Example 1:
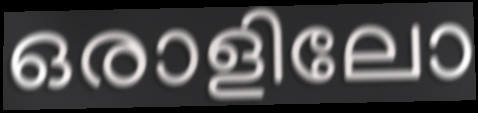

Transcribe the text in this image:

ഒരാളിലോ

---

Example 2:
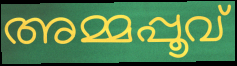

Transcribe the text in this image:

അമ്മപ്പൂവ്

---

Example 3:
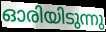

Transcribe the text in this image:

ഓരിയിടുന്നു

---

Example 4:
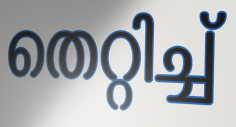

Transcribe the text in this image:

തെറ്റിച്ച്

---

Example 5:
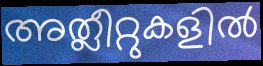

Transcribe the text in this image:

അത്ലീറ്റുകളിൽ